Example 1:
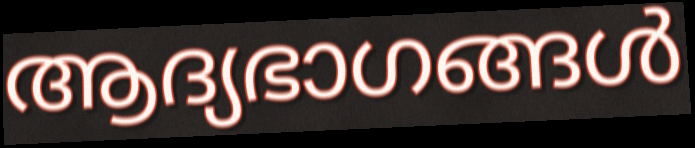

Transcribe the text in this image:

ആദ്യഭാഗങ്ങൾ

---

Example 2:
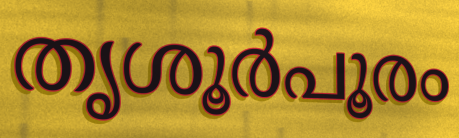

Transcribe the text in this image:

തൃശൂർപൂരം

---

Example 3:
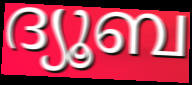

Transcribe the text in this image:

ദ്യൂബ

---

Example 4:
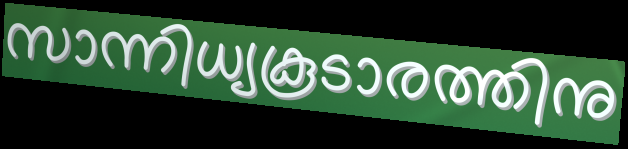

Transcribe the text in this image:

സാന്നിധ്യകൂടാരത്തിനു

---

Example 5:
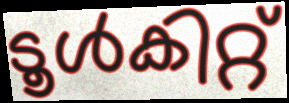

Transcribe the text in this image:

ടൂൾകിറ്റ്